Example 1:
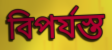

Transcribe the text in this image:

বিপৰ্যস্ত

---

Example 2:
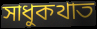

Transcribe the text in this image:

সাধুকথাত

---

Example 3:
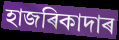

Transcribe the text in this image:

হাজৰিকাদাৰ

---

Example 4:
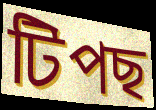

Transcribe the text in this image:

টিপছ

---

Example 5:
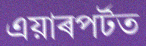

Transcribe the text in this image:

এয়াৰপৰ্টত